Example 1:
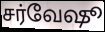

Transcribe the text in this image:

சர்வேஷூ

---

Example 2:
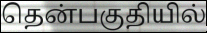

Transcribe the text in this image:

தென்பகுதியில்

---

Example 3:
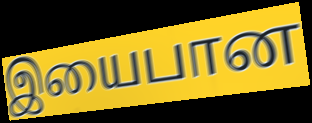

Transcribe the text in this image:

இயைபான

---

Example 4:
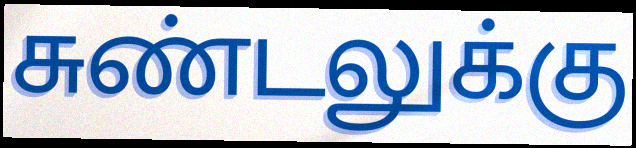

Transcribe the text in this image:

சுண்டலுக்கு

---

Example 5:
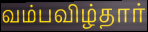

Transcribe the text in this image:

வம்பவிழ்தார்